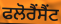
ਫਲੋਰੈਂਸੈਂਟ